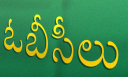
ఓబీసీలు